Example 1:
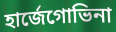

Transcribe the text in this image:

হাৰ্জেগোভিনা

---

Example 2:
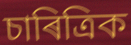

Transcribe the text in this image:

চাৰিত্ৰিক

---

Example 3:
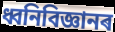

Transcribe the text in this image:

ধ্বনিবিজ্ঞানৰ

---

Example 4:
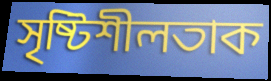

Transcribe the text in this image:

সৃষ্টিশীলতাক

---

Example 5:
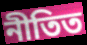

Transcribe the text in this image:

নীতিত